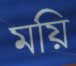
ময়ি